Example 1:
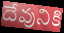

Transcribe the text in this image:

దేవునికి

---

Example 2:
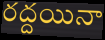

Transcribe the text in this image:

రద్దయినా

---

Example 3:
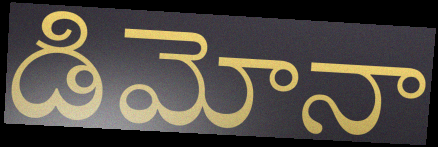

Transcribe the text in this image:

డిమోనా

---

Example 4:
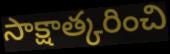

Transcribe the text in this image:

సాక్షాత్కరించి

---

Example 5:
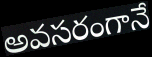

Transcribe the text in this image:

అవసరంగానే